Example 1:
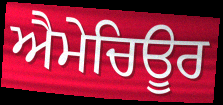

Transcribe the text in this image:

ਐਮੇਚਿਊਰ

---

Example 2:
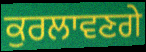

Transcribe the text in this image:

ਕੁਰਲਾਵਣਗੇ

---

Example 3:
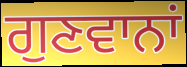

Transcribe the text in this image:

ਗੁਣਵਾਨਾਂ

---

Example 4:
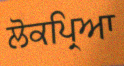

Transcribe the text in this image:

ਲੋਕਪ੍ਰਿਆ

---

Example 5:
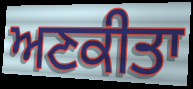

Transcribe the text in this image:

ਅਣਕੀਤਾ